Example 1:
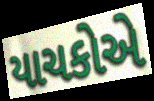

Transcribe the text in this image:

યાચકોએ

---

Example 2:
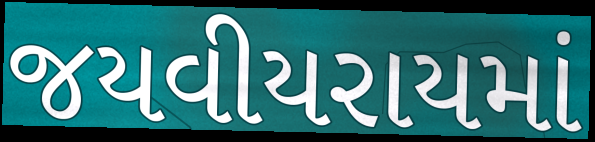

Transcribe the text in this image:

જયવીયરાયમાં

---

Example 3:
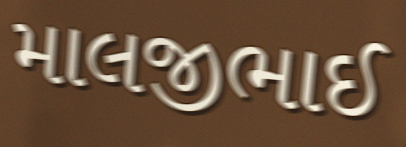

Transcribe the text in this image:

માલજીભાઈ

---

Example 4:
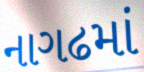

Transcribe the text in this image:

નાગઢમાં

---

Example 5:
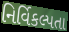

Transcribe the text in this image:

નિર્વિકલ્પતા